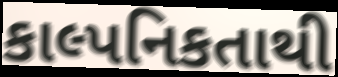
કાલ્પનિકતાથી